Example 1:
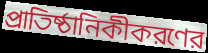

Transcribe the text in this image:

প্রাতিষ্ঠানিকীকরণের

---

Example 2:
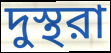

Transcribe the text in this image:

দুস্থরা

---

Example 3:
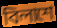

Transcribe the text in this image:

বিলাশে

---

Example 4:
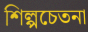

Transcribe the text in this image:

শিল্পচেতনা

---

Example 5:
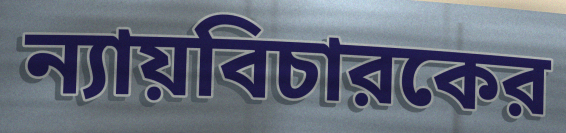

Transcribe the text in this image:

ন্যায়বিচারকের